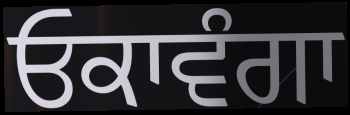
ਓਕਾਵੰਗਾ